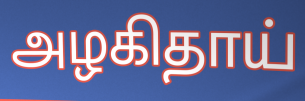
அழகிதாய்